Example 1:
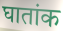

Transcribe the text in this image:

घातांक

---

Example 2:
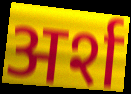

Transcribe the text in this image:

अर्श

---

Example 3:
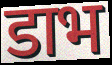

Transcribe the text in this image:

डाभ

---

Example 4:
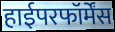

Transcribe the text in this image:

हाईपरफॉर्मेंस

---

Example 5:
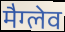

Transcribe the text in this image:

मैग्लेव